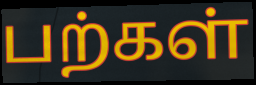
பற்கள்